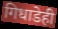
गिधाडेही